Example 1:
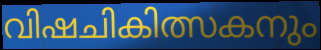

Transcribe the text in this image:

വിഷചികിത്സകനും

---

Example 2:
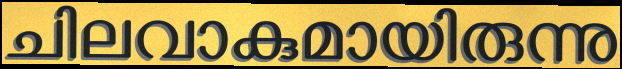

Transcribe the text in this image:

ചിലവാകുമായിരുന്നു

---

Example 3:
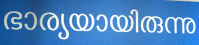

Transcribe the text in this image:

ഭാര്യയായിരുന്നു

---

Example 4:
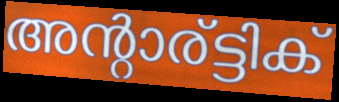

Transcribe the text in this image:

അന്റാര്ട്ടിക്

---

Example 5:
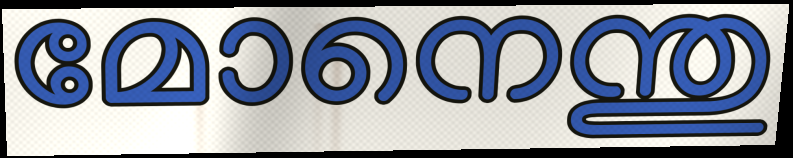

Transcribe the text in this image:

മോനെന്തു